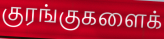
குரங்குகளைக்